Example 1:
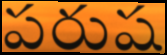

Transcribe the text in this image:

పరుష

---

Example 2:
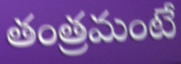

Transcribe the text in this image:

తంత్రమంటే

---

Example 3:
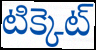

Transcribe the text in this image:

టిక్కెట్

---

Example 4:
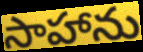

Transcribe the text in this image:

సాహాను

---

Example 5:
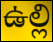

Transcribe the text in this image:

ఉల్లి